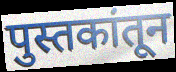
पुस्तकांतून